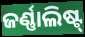
ଜର୍ଣ୍ଣାଲିଷ୍ଟ୍